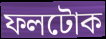
ফলটোক